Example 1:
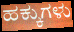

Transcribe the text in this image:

ಹಕ್ಕುಗಳು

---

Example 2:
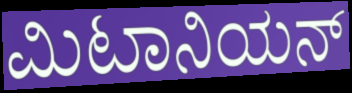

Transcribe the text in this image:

ಮಿಟಾನಿಯನ್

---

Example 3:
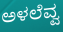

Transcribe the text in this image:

ಅಳಲೆವ್ವ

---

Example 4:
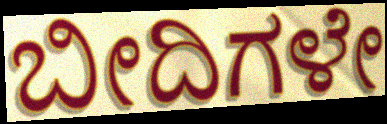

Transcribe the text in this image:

ಬೀದಿಗಳೇ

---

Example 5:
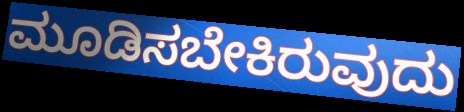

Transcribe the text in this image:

ಮೂಡಿಸಬೇಕಿರುವುದು